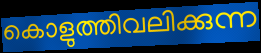
കൊളുത്തിവലിക്കുന്ന